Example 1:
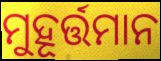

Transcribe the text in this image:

ମୁହୂର୍ତ୍ତମାନ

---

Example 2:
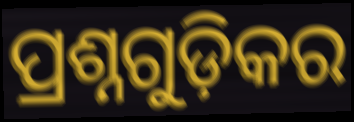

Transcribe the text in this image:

ପ୍ରଶ୍ନଗୁଡ଼ିକର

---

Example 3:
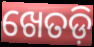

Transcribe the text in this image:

ଖେତଡ଼ି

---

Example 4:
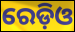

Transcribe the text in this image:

ରେଡ଼ିଓ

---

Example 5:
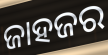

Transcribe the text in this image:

ଜାହଜର